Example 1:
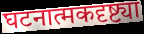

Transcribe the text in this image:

घटनात्मकदृष्ट्या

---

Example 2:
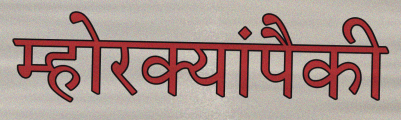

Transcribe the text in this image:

म्होरक्यांपैकी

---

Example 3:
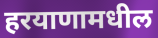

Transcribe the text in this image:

हरयाणामधील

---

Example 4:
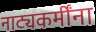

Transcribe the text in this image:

नाट्यकर्मींना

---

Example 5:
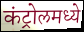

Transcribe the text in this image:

कंट्रोलमध्ये